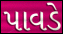
પાવડે